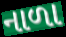
નાળા